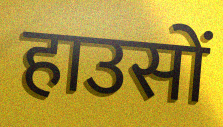
हाउसों